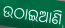
ଉଠାଇଆଣି